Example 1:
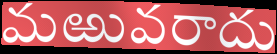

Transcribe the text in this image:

మఱువరాదు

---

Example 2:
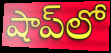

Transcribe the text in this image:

షాప్‌లో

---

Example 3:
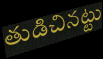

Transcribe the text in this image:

తుడిచినట్టు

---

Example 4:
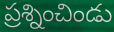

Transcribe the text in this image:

ప్రశ్నించిండు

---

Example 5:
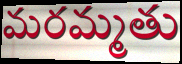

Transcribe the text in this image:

మరమ్మతు